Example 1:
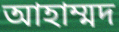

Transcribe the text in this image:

আহাম্মদ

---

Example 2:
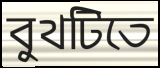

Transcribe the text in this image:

বুথটিতে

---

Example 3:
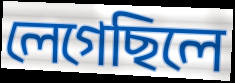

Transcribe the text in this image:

লেগেছিলে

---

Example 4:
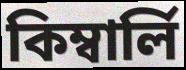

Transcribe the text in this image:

কিম্বার্লি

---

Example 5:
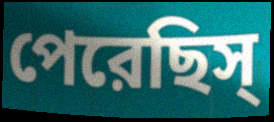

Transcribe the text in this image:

পেরেছিস্